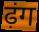
ढ़ंग